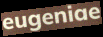
eugeniae